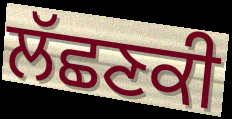
ਲੱਛਣਕੀ